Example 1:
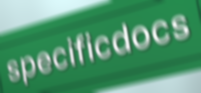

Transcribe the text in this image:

specificdocs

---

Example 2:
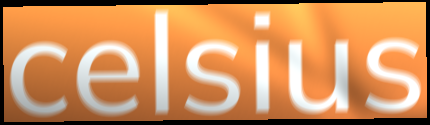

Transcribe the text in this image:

celsius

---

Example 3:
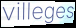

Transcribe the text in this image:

villeges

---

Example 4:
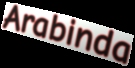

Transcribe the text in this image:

Arabinda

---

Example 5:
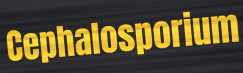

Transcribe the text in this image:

Cephalosporium